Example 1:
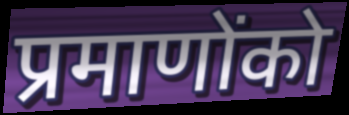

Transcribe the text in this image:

प्रमाणोंको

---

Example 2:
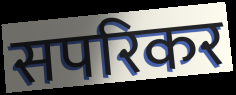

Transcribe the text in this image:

सपरिकर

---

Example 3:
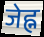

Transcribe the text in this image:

जेह्न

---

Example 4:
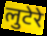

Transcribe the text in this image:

लुटेरे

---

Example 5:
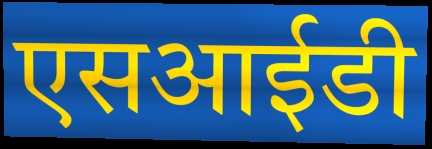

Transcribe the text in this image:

एसआईडी